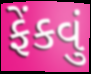
ફેંકવું